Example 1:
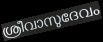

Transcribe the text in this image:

ശ്രീവാസുദേവം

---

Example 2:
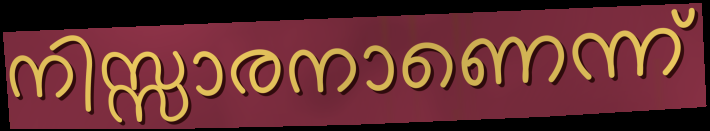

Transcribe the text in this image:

നിസ്സാരനാണെന്ന്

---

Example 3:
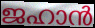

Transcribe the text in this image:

ജഹാൻ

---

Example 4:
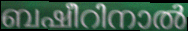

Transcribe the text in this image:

ബഷീറിനാൽ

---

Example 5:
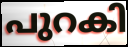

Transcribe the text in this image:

പുറകി